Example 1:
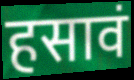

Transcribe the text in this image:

हसावं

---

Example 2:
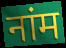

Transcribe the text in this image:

नांम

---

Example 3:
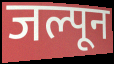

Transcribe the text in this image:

जल्पून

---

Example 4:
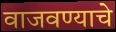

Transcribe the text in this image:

वाजवण्याचे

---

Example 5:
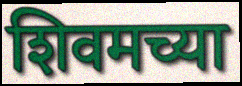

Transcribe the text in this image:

शिवमच्या